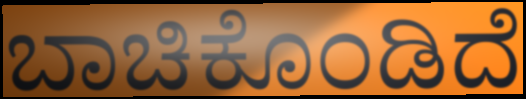
ಬಾಚಿಕೊಂಡಿದೆ